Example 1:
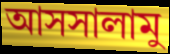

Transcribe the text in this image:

আসসালামু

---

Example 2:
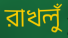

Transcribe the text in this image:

রাখলুঁ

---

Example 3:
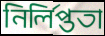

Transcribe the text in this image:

নির্লিপ্ততা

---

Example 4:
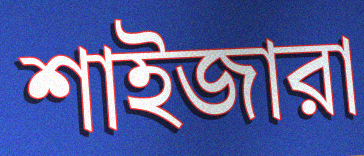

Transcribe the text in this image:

শাইজারা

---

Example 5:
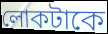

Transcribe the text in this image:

লোকটাকে